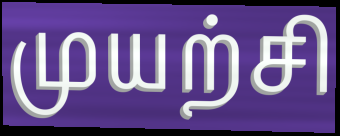
முயற்சி